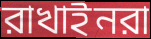
রাখাইনরা